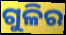
ଗୁଳିର